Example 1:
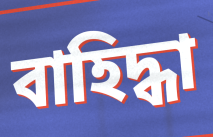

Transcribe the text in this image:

বাহিদ্ধা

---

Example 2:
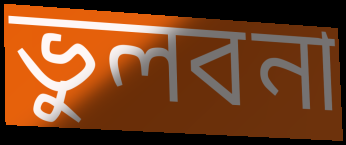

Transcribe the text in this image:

ভুলবনা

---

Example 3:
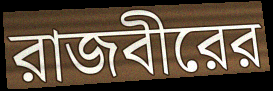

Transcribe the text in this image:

রাজবীরের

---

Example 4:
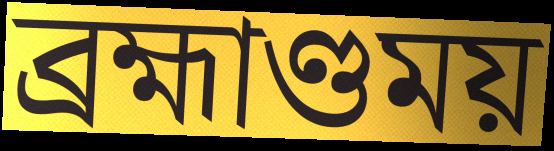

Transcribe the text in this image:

ব্রহ্মাণ্ডময়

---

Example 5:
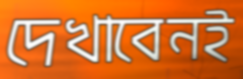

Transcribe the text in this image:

দেখাবেনই